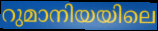
റുമാനിയയിലെ